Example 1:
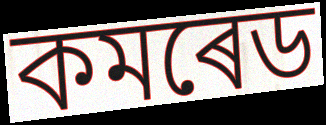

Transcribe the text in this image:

কমৰেড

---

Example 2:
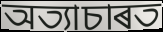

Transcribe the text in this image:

অত্যাচাৰত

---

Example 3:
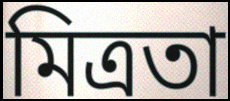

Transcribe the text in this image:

মিত্ৰতা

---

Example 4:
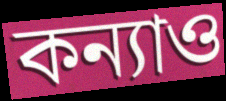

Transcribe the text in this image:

কন্যাও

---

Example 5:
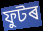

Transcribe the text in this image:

ফুটৰ